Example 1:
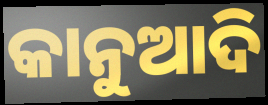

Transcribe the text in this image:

କାନୁଆଦି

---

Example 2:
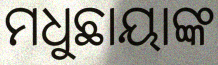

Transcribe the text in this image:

ମଧୁଛାୟାଙ୍କ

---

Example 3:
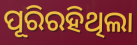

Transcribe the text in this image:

ପୂରିରହିଥିଲା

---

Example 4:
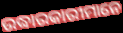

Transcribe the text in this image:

ଉଦ୍ଧାରକାରୀମାନେ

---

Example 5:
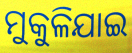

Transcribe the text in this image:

ମୁକୁଳିଯାଇ